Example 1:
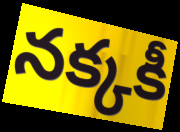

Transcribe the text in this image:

నక్కకీ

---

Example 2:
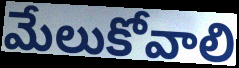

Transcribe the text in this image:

మేలుకోవాలి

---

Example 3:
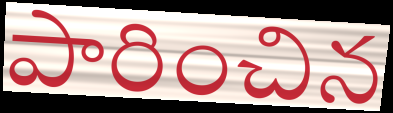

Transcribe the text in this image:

పారించిన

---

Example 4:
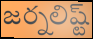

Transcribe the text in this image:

జర్నలిష్ట్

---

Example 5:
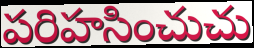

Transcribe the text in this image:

పరిహసించుచు